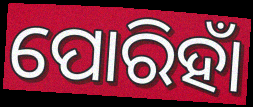
ପୋରିହାଁ